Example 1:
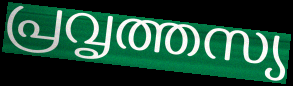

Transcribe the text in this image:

പ്രവൃത്തസ്യ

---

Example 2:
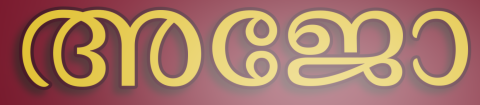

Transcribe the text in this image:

അജോ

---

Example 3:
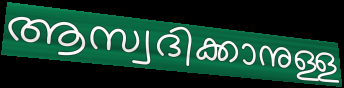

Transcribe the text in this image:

ആസ്വദിക്കാനുള്ള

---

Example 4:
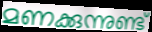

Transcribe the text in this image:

മണക്കുന്നുണ്ട്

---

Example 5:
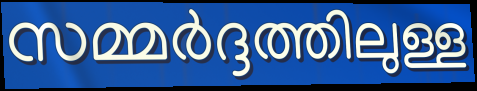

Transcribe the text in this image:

സമ്മർദ്ദത്തിലുള്ള